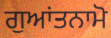
ਗੁਆਂਤਨਾਮੋ